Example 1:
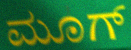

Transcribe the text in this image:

ಮೂಗ್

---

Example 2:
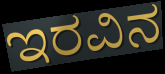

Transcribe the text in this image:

ಇರವಿನ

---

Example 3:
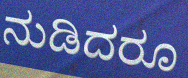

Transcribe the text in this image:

ನುಡಿದರೂ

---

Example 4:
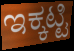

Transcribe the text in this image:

ಇಕ್ಕಟ್ಟಿ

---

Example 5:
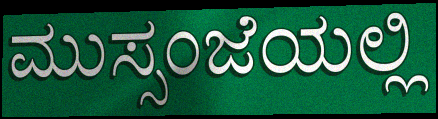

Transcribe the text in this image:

ಮುಸ್ಸಂಜೆಯಲ್ಲಿ